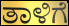
ತಾಳಿಗೆ